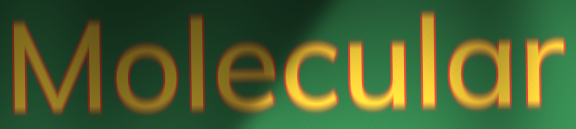
Molecular